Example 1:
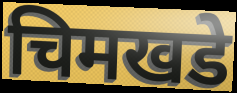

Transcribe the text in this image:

चिमखडे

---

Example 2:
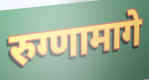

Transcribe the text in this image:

रुग्णामागे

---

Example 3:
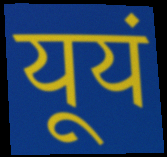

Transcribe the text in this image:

यूयं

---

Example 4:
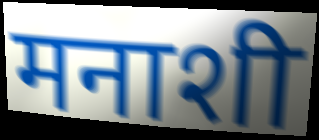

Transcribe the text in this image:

मनाशी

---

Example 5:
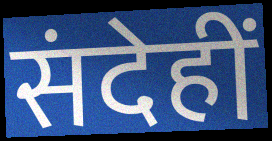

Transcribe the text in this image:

संदेहीं